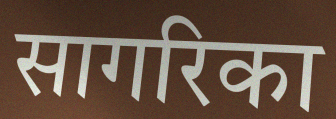
सागरिका